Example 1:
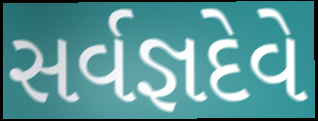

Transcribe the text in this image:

સર્વજ્ઞદેવે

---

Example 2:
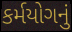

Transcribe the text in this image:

કર્મયોગનું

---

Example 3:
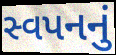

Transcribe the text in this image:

સ્વપનનું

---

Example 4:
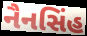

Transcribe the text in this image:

નૈનસિંહ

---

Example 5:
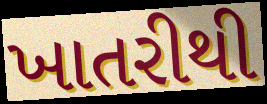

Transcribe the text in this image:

ખાતરીથી